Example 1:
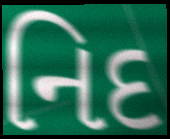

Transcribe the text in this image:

નિદ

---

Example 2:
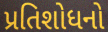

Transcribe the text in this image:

પ્રતિશોધનો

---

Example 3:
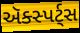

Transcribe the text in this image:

ઍક્સ્પર્ટ્સ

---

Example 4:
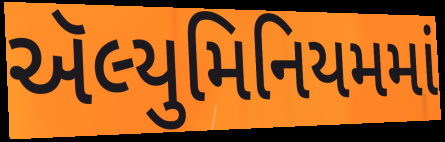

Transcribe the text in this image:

ઍલ્યુમિનિયમમાં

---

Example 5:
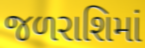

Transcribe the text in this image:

જળરાશિમાં